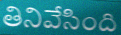
తినివేసింది